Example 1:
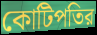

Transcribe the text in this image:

কোটিপতির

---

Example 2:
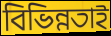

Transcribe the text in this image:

বিভিন্নতাই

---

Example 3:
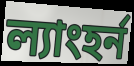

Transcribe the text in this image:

ল্যাংহর্ন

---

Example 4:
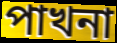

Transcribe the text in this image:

পাখনা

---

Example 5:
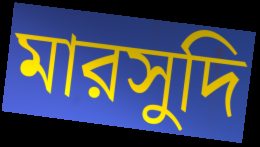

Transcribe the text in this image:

মারসুদি